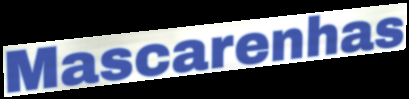
Mascarenhas